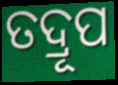
ତଦ୍ରୂପ